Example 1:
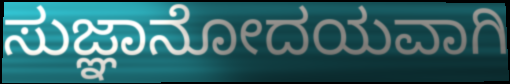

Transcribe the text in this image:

ಸುಜ್ಞಾನೋದಯವಾಗಿ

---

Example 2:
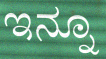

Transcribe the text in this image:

ಇನ್ನೂ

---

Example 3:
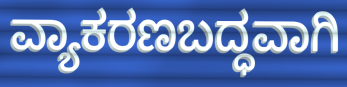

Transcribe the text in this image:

ವ್ಯಾಕರಣಬದ್ಧವಾಗಿ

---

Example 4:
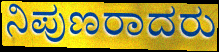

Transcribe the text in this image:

ನಿಪುಣರಾದರು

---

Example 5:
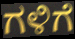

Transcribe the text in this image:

ಗಳಿಗೆ